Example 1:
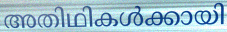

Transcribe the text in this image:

അതിഥികൾക്കായി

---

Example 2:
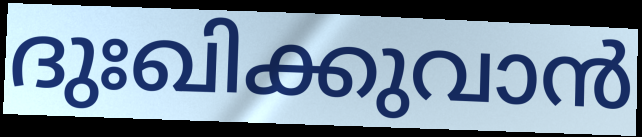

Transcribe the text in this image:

ദുഃഖിക്കുവാൻ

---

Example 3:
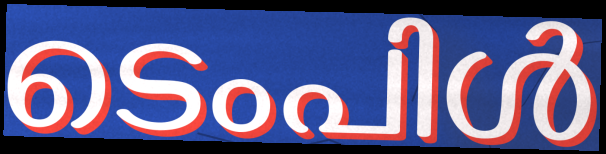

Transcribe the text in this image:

ടെംപിൾ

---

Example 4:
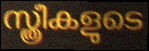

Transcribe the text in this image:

സ്ത്രീകളുടെ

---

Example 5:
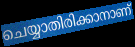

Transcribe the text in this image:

ചെയ്യാതിരിക്കാനാണ്